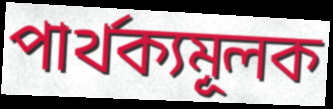
পাৰ্থক্যমূলক